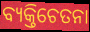
ବ୍ୟକ୍ତିଚେତନା